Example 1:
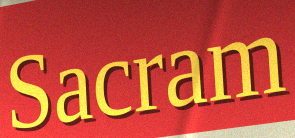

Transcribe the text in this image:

Sacram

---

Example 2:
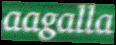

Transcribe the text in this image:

aagalla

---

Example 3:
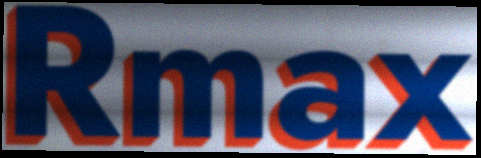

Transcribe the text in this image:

Rmax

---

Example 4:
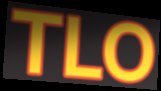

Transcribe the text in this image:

TLO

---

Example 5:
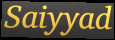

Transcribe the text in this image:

Saiyyad